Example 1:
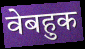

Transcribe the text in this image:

वेबहुक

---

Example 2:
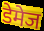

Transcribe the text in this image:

डेमेज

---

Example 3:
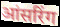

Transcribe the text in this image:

आंसरिंग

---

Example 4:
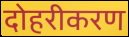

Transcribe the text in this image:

दोहरीकरण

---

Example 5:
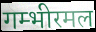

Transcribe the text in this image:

गम्भीरमल